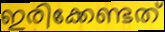
ഇരിക്കേണ്ടത്